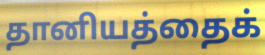
தானியத்தைக்